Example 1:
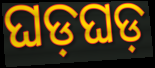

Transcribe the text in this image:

ଘଡ଼ଘଡ଼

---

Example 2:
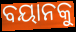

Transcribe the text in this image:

ବୟାନକୁ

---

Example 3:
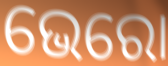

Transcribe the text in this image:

ଭେରୋ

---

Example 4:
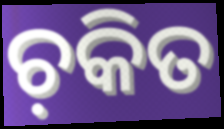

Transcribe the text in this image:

ଚ଼କିତ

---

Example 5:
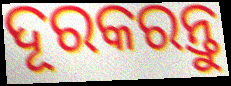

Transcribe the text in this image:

ଦୂରକରନ୍ତୁ